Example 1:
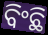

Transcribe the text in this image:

ବିଂଛି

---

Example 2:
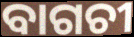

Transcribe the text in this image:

ବାଗଚୀ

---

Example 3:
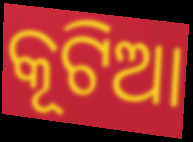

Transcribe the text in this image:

କୂଟିଆ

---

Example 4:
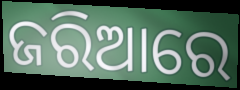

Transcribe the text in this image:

ଜରିଆରେ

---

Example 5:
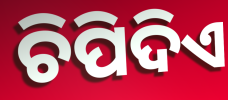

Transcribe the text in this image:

ଚିପିଦିଏ